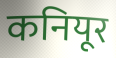
कनियूर